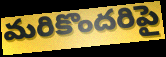
మరికొందరిపై